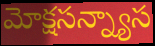
మోక్షసన్న్యాస